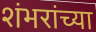
शंभरांच्या